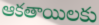
ఆకతాయిలకు